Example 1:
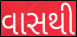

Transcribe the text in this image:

વાસથી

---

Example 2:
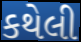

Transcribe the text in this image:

કથેલી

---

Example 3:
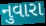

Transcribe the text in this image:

નુવારા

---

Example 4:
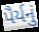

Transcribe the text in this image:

પૈર્યનું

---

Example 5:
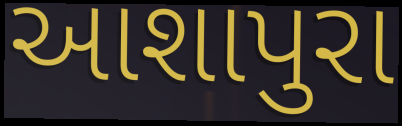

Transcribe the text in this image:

આશાપુરા